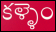
కళ్ళెం